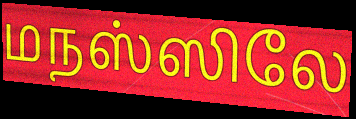
மநஸ்ஸிலே